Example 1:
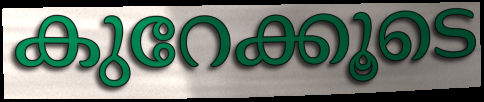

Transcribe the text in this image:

കുറേക്കൂടെ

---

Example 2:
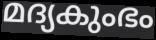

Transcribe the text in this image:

മദ്യകുംഭം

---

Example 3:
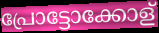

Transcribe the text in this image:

പ്രോട്ടോക്കോള്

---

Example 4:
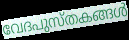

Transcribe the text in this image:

വേദപുസ്തകങ്ങൾ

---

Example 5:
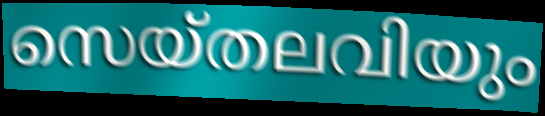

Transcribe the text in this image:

സെയ്തലവിയും